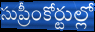
సుప్రీంకోర్టుల్లో